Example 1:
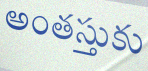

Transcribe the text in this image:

అంతస్తుకు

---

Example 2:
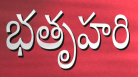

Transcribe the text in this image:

భతృహరి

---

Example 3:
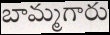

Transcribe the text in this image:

బామ్మగారు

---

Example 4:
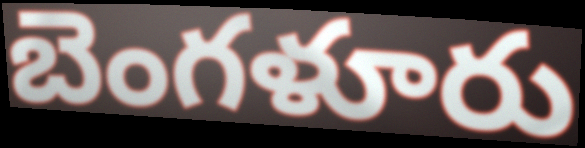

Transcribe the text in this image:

బెంగళూరు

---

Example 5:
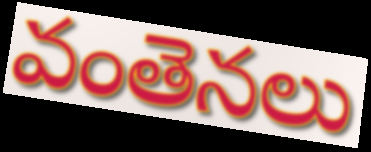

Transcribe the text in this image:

వంతెనలు